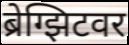
ब्रेग्झिटवर